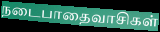
நடைபாதைவாசிகள்